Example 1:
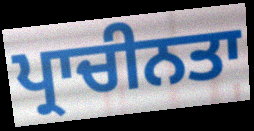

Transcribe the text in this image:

ਪ੍ਰਾਚੀਨਤਾ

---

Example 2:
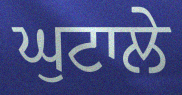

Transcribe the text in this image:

ਘੁਟਾਲੇ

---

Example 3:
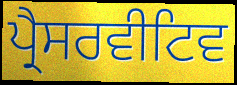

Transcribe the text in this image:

ਪ੍ਰੈਸਰਵੀਟਿਵ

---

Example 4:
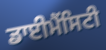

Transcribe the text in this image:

ਡਾਈਮੈਂਸਿਟੀ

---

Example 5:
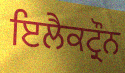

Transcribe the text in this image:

ਇਲੈਕਟ੍ਰੌਨ